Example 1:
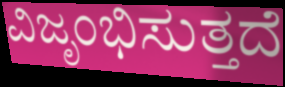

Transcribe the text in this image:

ವಿಜೃಂಭಿಸುತ್ತದೆ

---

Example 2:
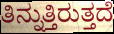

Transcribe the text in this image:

ತಿನ್ನುತ್ತಿರುತ್ತದೆ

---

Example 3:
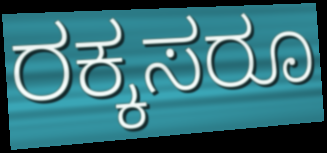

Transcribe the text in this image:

ರಕ್ಕಸರೂ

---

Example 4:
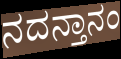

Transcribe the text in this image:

ನದನ್ತಾನಂ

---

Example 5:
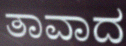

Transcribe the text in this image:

ತಾವಾದ